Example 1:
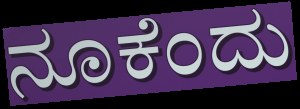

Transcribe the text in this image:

ನೂಕೆಂದು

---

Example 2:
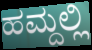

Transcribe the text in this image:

ಹಮ್ದಲ್ಲಿ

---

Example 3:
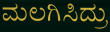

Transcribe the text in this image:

ಮಲಗಿಸಿದ್ರು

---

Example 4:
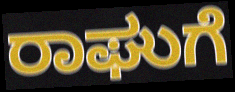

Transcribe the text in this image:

ರಾಘುಗೆ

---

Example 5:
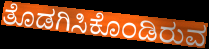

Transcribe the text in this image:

ತೊಡಗಿಸಿಕೊಂಡಿರುವ